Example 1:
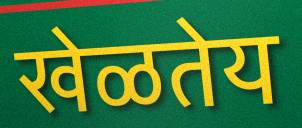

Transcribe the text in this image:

खेळतेय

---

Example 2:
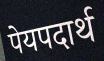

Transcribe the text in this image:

पेयपदार्थ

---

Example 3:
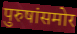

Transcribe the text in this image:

पुरुषांसमोर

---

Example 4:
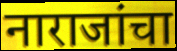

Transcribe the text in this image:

नाराजांचा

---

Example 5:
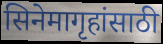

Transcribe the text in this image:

सिनेमागृहांसाठी